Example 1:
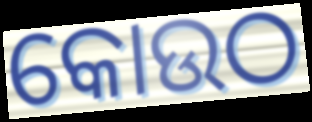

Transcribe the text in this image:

କୋଉଠ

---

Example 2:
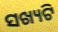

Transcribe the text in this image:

ସଖ୍ୟଟି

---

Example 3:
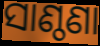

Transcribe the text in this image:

ସାଣ୍ଠଣା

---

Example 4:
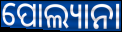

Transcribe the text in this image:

ପୋଲ୍ୟାନା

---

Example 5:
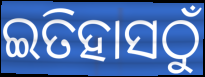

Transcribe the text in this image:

ଇତିହାସଠୁଁ